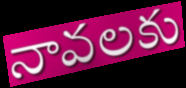
నావలకు